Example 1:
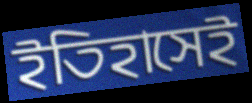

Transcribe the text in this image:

ইতিহাসেই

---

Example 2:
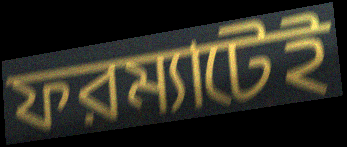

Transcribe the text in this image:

ফরম্যাটেই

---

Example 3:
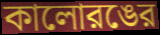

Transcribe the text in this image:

কালোরঙের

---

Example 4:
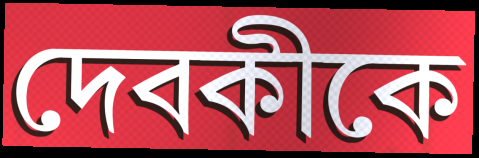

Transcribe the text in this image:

দেবকীকে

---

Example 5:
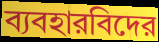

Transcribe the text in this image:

ব্যবহারবিদের